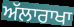
ਅੱਲਾਰਾਖਾ